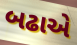
બઢાએ